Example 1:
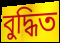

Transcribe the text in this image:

বুদ্ধিত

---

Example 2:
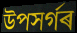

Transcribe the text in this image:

উপসৰ্গৰ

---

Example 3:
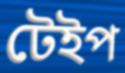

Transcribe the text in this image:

টেইপ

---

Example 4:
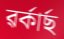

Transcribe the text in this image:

ৱৰ্কাৰ্ছ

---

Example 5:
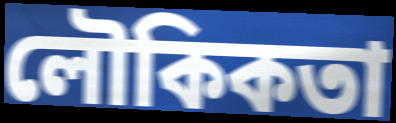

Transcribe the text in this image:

লৌকিকতা